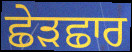
ਛੇੜਛਾਰ